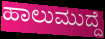
ಹಾಲುಮುದ್ದೆ